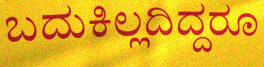
ಬದುಕಿಲ್ಲದಿದ್ದರೂ